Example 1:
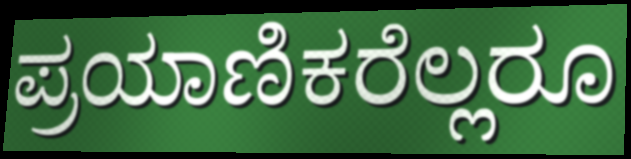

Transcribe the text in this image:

ಪ್ರಯಾಣಿಕರೆಲ್ಲರೂ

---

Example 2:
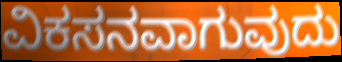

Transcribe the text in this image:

ವಿಕಸನವಾಗುವುದು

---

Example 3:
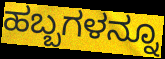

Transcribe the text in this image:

ಹಬ್ಬಗಳನ್ನೂ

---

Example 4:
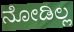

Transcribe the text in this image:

ನೋಡಿಲ್ಲ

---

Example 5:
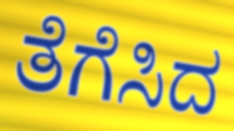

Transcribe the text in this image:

ತೆಗೆಸಿದ